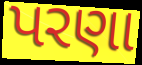
પરણા